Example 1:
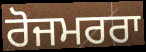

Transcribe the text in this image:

ਰੋਜਮਰਰਾ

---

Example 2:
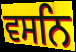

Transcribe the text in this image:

ਵਸਨਿ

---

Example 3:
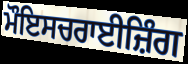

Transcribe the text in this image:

ਮੌਇਸਚਰਾਈਜ਼ਿੰਗ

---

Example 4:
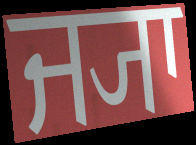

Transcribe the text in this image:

ਜ੍ਯਾ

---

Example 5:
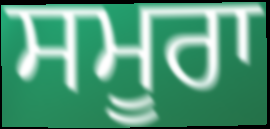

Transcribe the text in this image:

ਸਮੂਰਾ